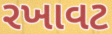
રખાવટ